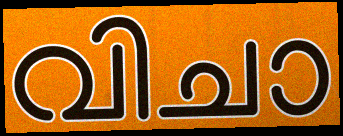
വിചാ